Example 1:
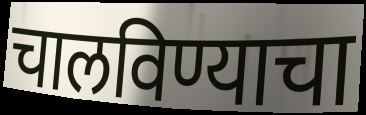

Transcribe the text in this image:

चालविण्याचा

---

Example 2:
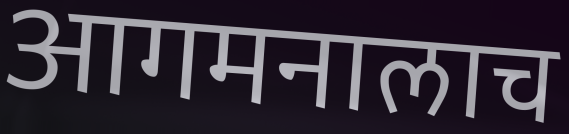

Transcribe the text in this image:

आगमनालाच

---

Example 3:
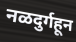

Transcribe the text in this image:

नळदुर्गहून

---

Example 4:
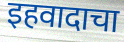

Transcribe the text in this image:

इहवादाचा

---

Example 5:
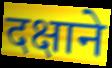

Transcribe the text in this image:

दक्षाने